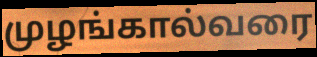
முழங்கால்வரை